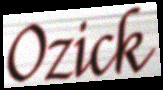
Ozick